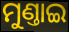
ମୁଣ୍ତାଇ